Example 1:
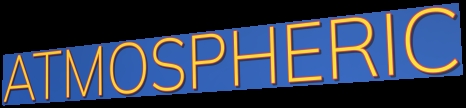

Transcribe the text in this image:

ATMOSPHERIC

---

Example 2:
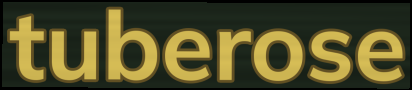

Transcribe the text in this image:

tuberose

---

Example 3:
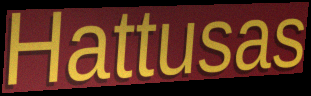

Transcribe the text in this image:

Hattusas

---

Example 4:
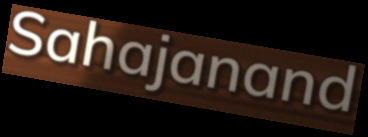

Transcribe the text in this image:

Sahajanand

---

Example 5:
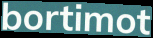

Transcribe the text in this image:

bortimot